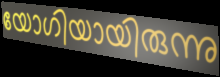
യോഗിയായിരുന്നു